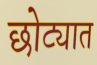
छोट्यात